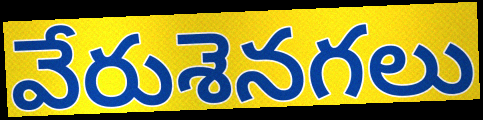
వేరుశెనగలు